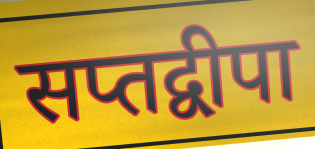
सप्तद्वीपा